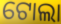
ଟୋଲା